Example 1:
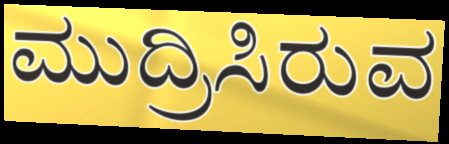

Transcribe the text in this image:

ಮುದ್ರಿಸಿರುವ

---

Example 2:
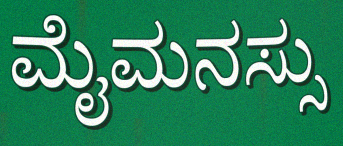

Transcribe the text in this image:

ಮೈಮನಸ್ಸು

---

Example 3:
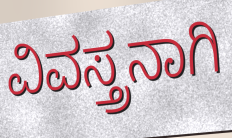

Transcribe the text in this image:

ವಿವಸ್ತ್ರನಾಗಿ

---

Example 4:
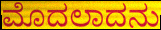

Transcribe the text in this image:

ಮೊದಲಾದನು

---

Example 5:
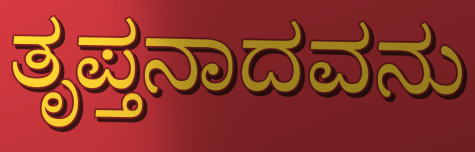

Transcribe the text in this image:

ತೃಪ್ತನಾದವನು